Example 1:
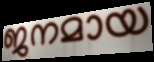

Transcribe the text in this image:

ജനമായ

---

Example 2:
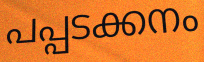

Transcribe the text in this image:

പപ്പടക്കനം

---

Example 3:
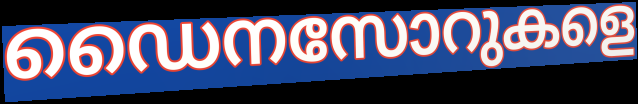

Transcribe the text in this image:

ഡൈനസോറുകളെ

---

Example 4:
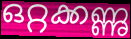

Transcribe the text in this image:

ഒറ്റക്കണ്ണു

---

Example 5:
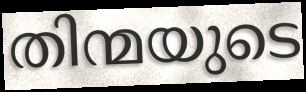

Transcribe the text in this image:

തിന്മയുടെ